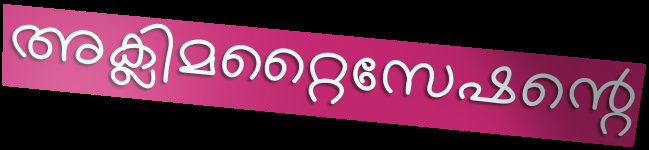
അക്ലിമറ്റൈസേഷന്റെ